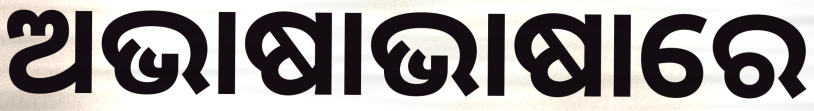
ଅଭାଷାଭାଷାରେ